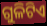
ଗୁଳିଟିଏ